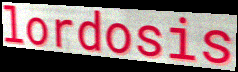
lordosis